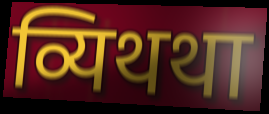
व्यिथथा